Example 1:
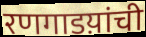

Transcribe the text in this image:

रणगाडय़ांची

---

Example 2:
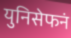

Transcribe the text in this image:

युनिसेफनं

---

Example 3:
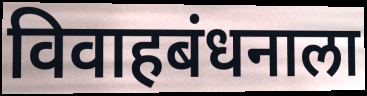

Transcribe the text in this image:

विवाहबंधनाला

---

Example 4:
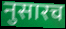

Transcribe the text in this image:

नुसारच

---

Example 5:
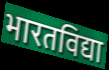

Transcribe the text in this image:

भारतविद्या